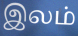
இலம்